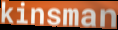
kinsman